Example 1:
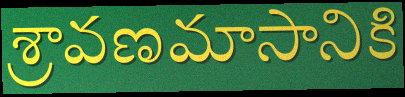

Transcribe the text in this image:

శ్రావణమాసానికి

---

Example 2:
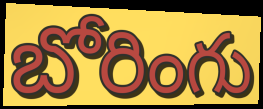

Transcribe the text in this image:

బోరింగు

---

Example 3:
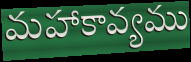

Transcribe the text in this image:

మహాకావ్యము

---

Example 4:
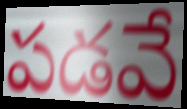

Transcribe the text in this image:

పడవే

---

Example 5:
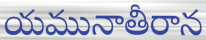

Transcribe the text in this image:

యమునాతీరాన